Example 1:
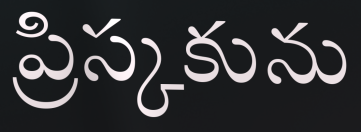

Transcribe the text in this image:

ప్రిస్కకును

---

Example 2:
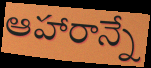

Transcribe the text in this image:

ఆహారాన్నే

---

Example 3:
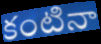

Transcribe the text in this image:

కంటినా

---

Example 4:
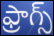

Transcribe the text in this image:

ఫ్రాగ్స్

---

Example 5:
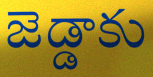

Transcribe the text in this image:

జెడ్డాకు